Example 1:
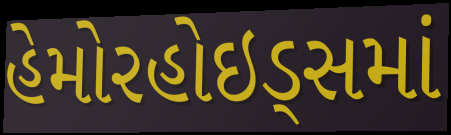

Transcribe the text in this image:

હેમોરહોઇડ્સમાં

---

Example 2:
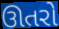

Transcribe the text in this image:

ઊતરો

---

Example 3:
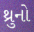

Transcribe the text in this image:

થ્રુનો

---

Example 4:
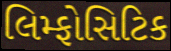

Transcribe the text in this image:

લિમ્ફોસિટિક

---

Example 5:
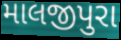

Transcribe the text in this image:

માલજીપુરા